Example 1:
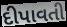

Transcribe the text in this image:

દીપાવતી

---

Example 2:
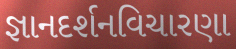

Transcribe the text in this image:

જ્ઞાનદર્શનવિચારણા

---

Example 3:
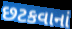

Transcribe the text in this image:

છટકવાનાં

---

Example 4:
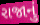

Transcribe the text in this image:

રાજાનું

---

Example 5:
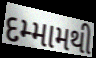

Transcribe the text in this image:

દમ્મામથી